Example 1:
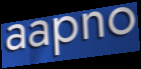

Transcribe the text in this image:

aapno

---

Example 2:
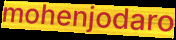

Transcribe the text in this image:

mohenjodaro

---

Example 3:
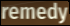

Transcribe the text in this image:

remedy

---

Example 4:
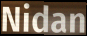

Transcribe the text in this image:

Nidan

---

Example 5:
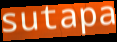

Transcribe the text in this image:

sutapa